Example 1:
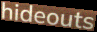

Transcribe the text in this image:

hideouts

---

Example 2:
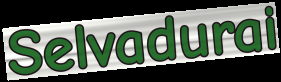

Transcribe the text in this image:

Selvadurai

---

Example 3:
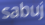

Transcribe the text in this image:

sabuj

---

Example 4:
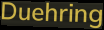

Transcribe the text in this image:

Duehring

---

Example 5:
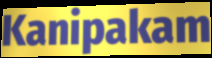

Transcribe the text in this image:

Kanipakam